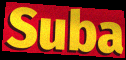
Suba